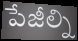
పేజీల్ని